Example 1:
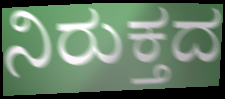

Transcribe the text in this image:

ನಿರುಕ್ತದ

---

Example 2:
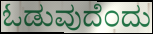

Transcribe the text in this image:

ಓಡುವುದೆಂದು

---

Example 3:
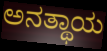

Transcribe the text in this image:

ಅನತ್ಥಾಯ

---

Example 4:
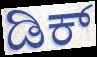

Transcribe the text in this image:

ಡಿಕ್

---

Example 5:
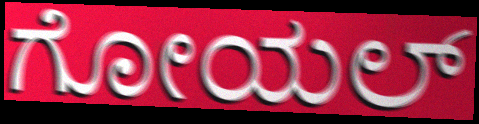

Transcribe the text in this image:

ಗೋಯಲ್